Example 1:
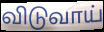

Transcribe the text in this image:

விடுவாய்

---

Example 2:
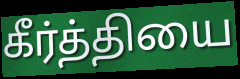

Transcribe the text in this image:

கீர்த்தியை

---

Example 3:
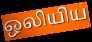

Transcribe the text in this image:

ஒலியிய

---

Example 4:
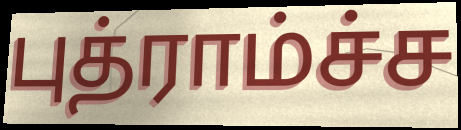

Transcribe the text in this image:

புத்ராம்ச்ச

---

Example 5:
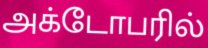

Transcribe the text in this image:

அக்டோபரில்